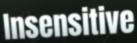
Insensitive